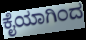
ಕೈಯಾಗಿಂದ